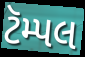
ટૅમ્પલ